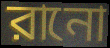
রানো